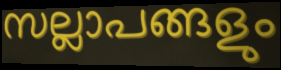
സല്ലാപങ്ങളും